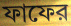
ফাফের